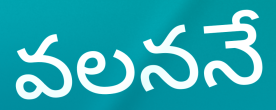
వలననే